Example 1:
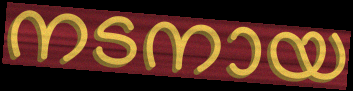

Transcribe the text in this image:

നടനായ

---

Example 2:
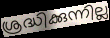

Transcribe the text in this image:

ശ്രദ്ധിക്കുന്നില്ല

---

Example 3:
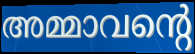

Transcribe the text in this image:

അമ്മാവന്റെ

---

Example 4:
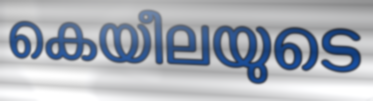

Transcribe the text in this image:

കെയീലയുടെ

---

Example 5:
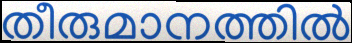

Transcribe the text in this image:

തീരുമാനത്തിൽ